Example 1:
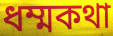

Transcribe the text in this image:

ধম্মকথা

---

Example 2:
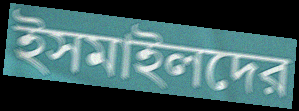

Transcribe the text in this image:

ইসমাইলদের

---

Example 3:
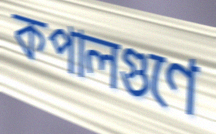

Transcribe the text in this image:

কপালগুণে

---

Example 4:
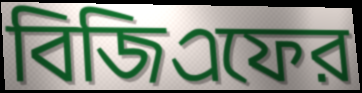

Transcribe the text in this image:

বিজিএফের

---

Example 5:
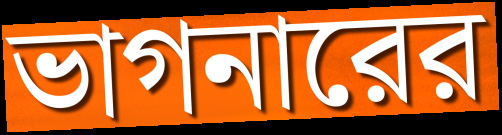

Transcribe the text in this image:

ভাগনারের